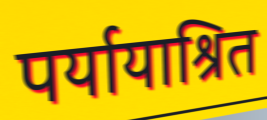
पर्यायाश्रित